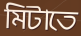
মিটাতে